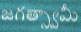
జగత్స్వామీ